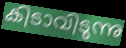
കിടാവിടുന്നു